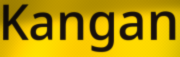
Kangan